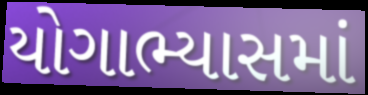
યોગાભ્યાસમાં